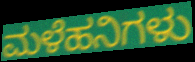
ಮಳೆಹನಿಗಳು